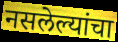
नसलेल्यांचा